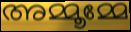
അമ്മൂമ്മേ